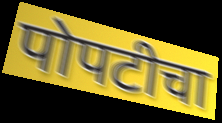
पोपटीचा